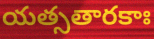
యత్సతారకాః